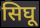
सिघू